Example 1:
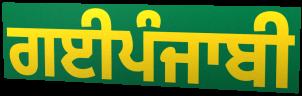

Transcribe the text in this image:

ਗਈਪੰਜਾਬੀ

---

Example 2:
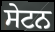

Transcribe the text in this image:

ਸੇਟਨ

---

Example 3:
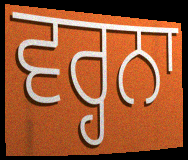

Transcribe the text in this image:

ਵਰ੍ਹਨਾ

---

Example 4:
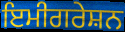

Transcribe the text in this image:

ਇਮੀਗਰੇਸ਼ਨ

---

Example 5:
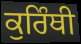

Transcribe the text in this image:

ਕੁਰਿੰਥੀ